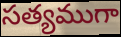
సత్యముగా